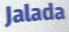
Jalada